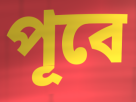
পূবে